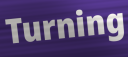
Turning